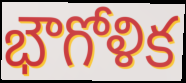
భౌగోళిక